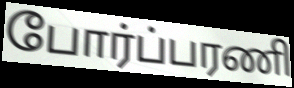
போர்ப்பரணி